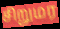
சிறுமர